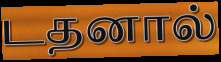
டதனால்